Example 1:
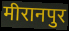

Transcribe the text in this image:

मीरानपुर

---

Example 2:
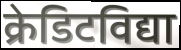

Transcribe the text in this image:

क्रेडिटविद्या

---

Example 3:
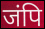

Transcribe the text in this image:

जंपि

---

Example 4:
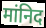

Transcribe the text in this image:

मांनिद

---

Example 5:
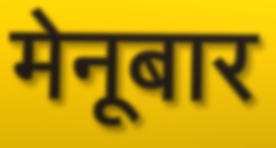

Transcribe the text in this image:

मेनूबार